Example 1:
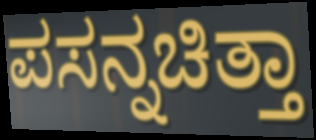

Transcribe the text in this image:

ಪಸನ್ನಚಿತ್ತಾ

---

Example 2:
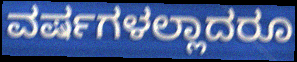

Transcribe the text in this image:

ವರ್ಷಗಳಲ್ಲಾದರೂ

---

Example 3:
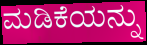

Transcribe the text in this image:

ಮಡಿಕೆಯನ್ನು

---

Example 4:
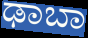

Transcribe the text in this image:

ಢಾಬಾ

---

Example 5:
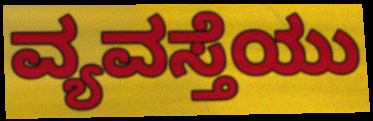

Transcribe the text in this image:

ವ್ಯವಸ್ತೆಯು